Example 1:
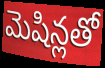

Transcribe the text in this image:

మెషిన్లతో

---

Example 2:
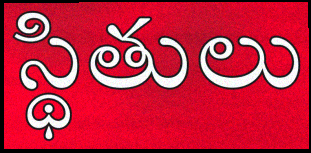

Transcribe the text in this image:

స్థితులు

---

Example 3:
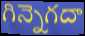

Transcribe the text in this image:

గిన్నెగదా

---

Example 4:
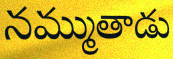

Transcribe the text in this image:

నమ్ముతాడు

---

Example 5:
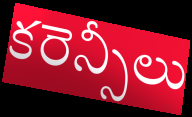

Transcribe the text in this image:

కరెన్సీలు